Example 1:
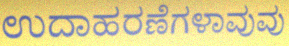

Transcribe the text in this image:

ಉದಾಹರಣೆಗಳಾವುವು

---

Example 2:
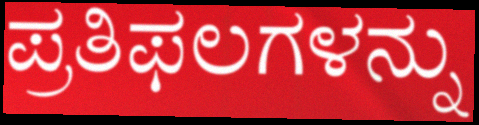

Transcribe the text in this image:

ಪ್ರತಿಫಲಗಳನ್ನು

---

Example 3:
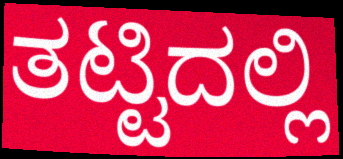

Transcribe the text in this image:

ತಟ್ಟಿದಲ್ಲಿ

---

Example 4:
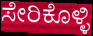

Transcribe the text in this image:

ಸೇರಿಕೊಳ್ಳಿ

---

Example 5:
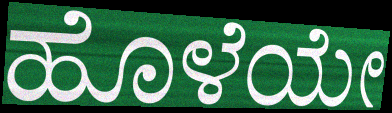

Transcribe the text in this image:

ಹೊಳೆಯೇ